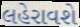
લહેરાવશે